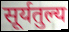
सूर्यतुल्य